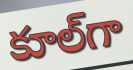
కూల్‌గా